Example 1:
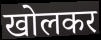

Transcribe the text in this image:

खोलकर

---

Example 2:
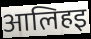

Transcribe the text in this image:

आलिहइ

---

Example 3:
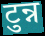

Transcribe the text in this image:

टुन्न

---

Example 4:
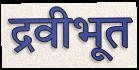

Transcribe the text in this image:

द्रवीभूत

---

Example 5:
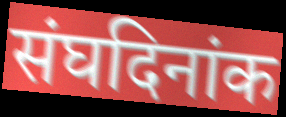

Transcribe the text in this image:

संघदिनांक